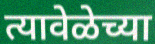
त्यावेळेच्या